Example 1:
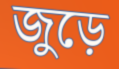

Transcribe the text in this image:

জুড়ে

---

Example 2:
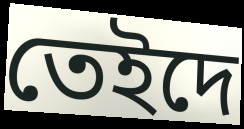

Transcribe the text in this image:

তেইদে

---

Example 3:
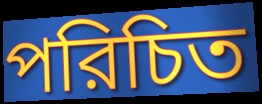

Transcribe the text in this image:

পরিচিত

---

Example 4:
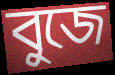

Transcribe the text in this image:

বুজে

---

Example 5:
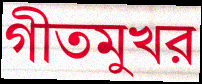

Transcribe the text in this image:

গীতমুখর